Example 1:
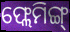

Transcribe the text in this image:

ଫ୍ଲେମିଙ୍ଗ୍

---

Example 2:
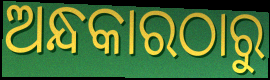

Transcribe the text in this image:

ଅନ୍ଧକାରଠାରୁ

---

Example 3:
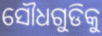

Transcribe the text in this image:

ସୌଧଗୁଡିକୁ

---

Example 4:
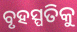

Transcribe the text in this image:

ବୃହସ୍ପତିକୁ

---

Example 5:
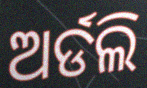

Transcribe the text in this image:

ଅର୍ଡଲି